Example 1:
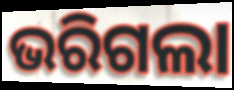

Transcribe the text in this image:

ଭରିଗଲା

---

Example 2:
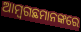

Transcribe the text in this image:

ଆମ୍ବଗଛମାନଙ୍କରେ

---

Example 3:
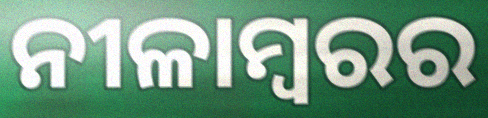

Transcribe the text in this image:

ନୀଳାମ୍ବରର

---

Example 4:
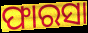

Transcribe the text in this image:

ଫାରସା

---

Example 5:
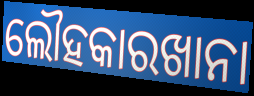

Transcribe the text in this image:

ଲୌହକାରଖାନା